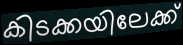
കിടക്കയിലേക്ക്